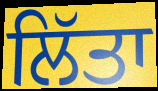
ਲਿੱਤਾ